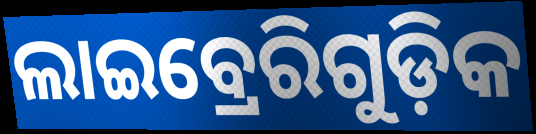
ଲାଇବ୍ରେରିଗୁଡ଼ିକ